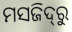
ମସଜିଦ୍‌ରୁ